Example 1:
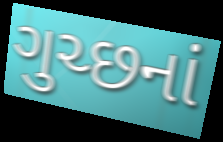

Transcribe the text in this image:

ગુચ્છનાં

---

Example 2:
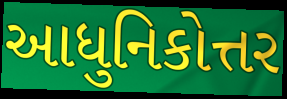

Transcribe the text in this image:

આધુનિકોત્તર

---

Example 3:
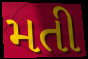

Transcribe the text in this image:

મતી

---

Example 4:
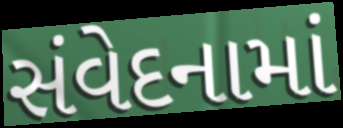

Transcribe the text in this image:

સંવેદનામાં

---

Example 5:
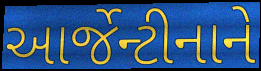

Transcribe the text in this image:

આર્જેન્ટીનાને